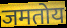
जमतोय